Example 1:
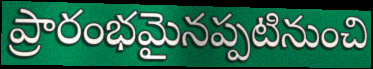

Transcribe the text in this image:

ప్రారంభమైనప్పటినుంచి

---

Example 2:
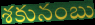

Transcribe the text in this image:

శకునంబు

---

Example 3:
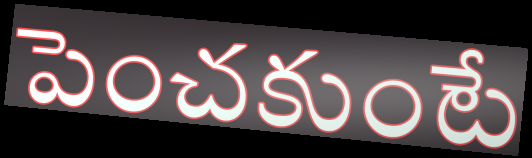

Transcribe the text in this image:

పెంచకుంటే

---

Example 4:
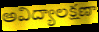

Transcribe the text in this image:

అవిద్యాలక్షణా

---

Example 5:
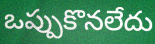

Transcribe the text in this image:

ఒప్పుకొనలేదు